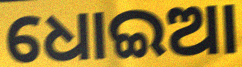
ଧୋଇଆ